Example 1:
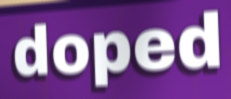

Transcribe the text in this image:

doped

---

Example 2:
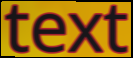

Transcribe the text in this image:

text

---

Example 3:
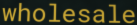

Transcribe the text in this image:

wholesale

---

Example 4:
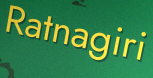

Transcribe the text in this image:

Ratnagiri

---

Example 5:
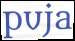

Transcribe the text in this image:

puja